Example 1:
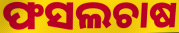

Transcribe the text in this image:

ଫସଲଚାଷ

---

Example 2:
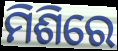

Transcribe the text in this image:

ମିଶିରେ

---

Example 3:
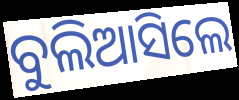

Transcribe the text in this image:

ବୁଲିଆସିଲେ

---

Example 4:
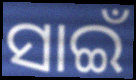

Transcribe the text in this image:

ସାଇଁ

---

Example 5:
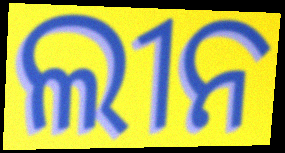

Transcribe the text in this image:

ଲୀନ